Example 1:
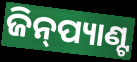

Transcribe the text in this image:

ଜିନ୍‍ପ୍ୟାଣ୍ଟ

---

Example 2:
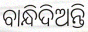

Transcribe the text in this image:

ବାନ୍ଧିଦିଅନ୍ତି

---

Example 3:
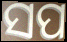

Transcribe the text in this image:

ସପ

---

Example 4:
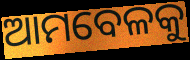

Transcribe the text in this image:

ଆମବେଳକୁ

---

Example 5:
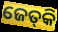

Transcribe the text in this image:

ଜେତ୍‌କି